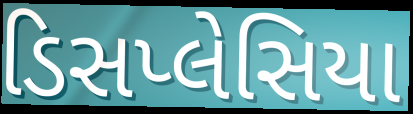
ડિસપ્લેસિયા